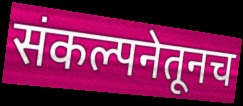
संकल्पनेतूनच